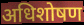
अधिशोषण